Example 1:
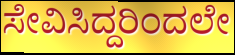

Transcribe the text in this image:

ಸೇವಿಸಿದ್ದರಿಂದಲೇ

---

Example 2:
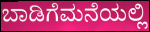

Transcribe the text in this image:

ಬಾಡಿಗೆಮನೆಯಲ್ಲಿ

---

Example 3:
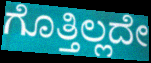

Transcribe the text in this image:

ಗೊತ್ತಿಲ್ಲದೇ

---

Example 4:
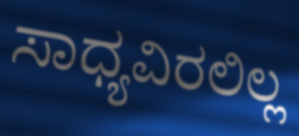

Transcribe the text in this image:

ಸಾಧ್ಯವಿರಲಿಲ್ಲ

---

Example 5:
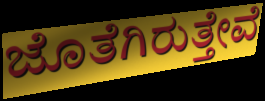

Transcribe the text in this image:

ಜೊತೆಗಿರುತ್ತೇವೆ